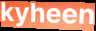
kyheen